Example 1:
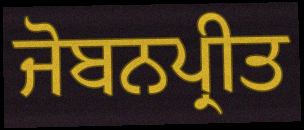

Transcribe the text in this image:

ਜੋਬਨਪ੍ਰੀਤ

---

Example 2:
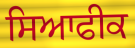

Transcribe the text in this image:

ਸਿਆਫੀਕ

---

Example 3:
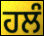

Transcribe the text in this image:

ਹਲੰ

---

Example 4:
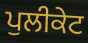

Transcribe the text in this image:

ਪੁਲੀਕੇਟ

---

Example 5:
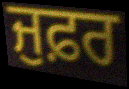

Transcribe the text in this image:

ਜੁਫ਼ਰ